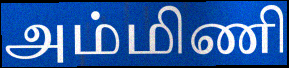
அம்மிணி